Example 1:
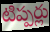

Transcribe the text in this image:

టిప్పర్లు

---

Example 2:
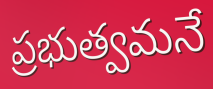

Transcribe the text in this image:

ప్రభుత్వమనే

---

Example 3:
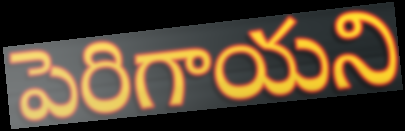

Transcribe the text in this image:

పెరిగాయని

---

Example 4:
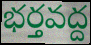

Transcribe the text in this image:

భర్తవద్ద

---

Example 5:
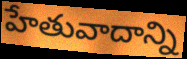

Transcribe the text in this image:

హేతువాదాన్ని